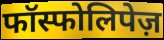
फॉस्फोलिपेज़